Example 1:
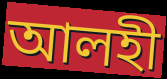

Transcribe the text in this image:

আলহী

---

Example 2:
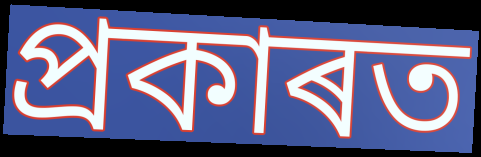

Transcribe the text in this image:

প্ৰকাৰত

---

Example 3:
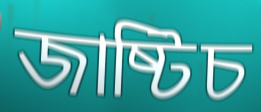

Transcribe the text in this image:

জাষ্টিচ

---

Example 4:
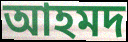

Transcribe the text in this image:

আহমদ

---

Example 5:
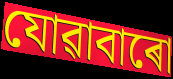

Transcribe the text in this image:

যোৱাবাৰো